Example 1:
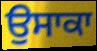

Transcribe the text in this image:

ਉਸਾਕਾ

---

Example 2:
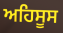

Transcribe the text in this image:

ਅਹਿਸੂਸ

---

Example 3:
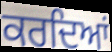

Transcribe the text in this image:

ਕਰਦਿਆਂ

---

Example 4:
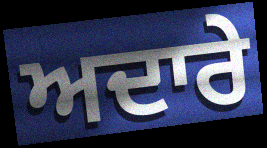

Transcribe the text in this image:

ਅਦਾਰੇ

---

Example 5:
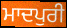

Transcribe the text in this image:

ਮਾਦਪੁਰੀ